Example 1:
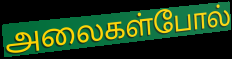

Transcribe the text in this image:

அலைகள்போல்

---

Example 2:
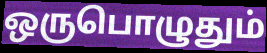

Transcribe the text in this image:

ஒருபொழுதும்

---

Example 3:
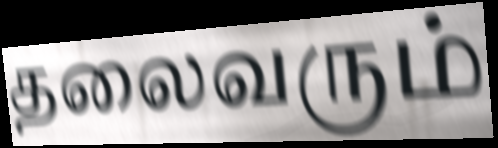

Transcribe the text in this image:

தலைவரும்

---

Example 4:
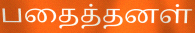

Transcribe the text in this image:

பதைத்தனள்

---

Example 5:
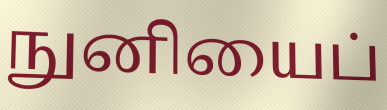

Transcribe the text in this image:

நுனியைப்